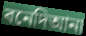
বনেদিআনা